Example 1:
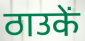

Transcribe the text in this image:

ठाउकें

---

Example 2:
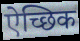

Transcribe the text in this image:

ऐच्छिक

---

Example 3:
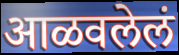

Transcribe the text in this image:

आळवलेलं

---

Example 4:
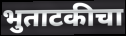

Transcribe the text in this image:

भुताटकीचा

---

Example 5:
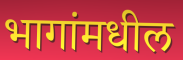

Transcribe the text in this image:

भागांमधील